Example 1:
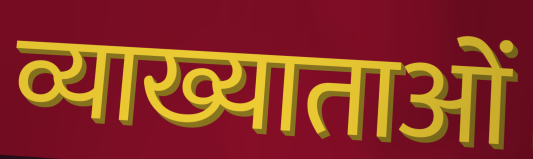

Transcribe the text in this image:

व्याख्याताओं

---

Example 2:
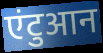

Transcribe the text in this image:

एंटुआन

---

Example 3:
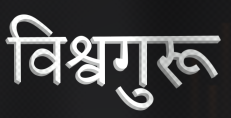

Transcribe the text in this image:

विश्वगुरू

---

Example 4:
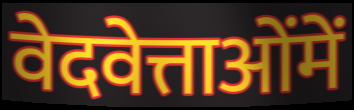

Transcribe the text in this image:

वेदवेत्ताओंमें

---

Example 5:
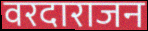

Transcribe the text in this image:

वरदाराजन